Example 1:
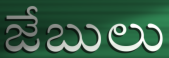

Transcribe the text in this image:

జేబులు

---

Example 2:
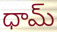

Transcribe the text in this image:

ధామ్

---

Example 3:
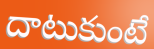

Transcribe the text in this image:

దాటుకుంటే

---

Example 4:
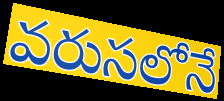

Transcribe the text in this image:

వరుసలోనే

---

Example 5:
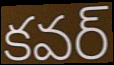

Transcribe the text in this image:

కవర్